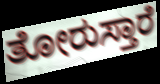
ತೋರುಸ್ತಾರೆ